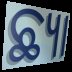
ଛ୍ୟା